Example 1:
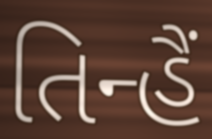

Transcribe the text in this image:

તિન્હૈં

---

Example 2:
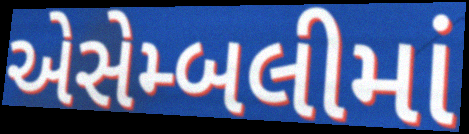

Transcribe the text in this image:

એસેમ્બલીમાં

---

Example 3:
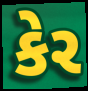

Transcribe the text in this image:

કેર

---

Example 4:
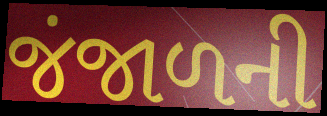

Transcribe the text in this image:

જંજાળની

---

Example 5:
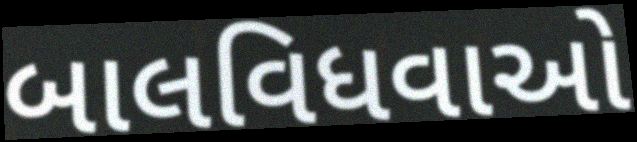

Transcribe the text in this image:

બાલવિધવાઓ